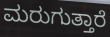
ಮರುಗುತ್ತಾರೆ